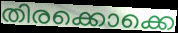
തിരക്കൊക്കെ